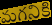
మగనికి